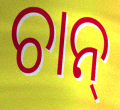
ଚାନ୍